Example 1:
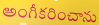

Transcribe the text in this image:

అంగీకరించాను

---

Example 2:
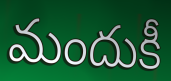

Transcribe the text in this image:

మందుకీ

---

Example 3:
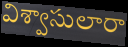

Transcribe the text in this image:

విశ్వాసులారా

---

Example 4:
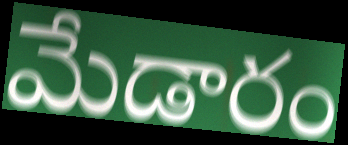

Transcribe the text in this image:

మేడారం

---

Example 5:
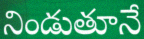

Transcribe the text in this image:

నిండుతూనే